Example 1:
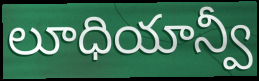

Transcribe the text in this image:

లూధియాన్వీ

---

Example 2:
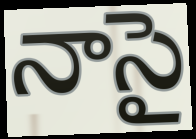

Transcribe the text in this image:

నాసై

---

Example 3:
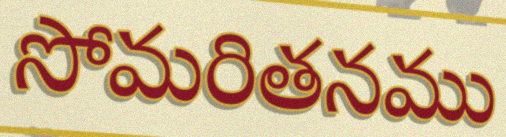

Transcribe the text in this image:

సోమరితనము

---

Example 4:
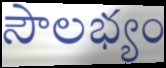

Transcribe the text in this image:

సౌలభ్యం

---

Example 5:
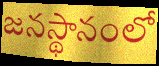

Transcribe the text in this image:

జనస్థానంలో